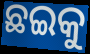
ଛଇକୁ